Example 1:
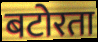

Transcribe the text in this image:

बटोरता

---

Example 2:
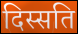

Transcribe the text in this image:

दिस्सति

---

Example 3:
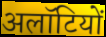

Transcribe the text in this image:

अलॉटियों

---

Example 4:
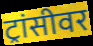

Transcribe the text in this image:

ट्रांसीवर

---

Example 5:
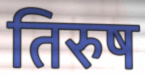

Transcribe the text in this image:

तिरुष